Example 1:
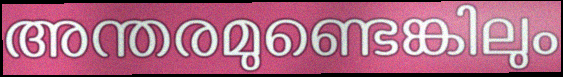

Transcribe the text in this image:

അന്തരമുണ്ടെങ്കിലും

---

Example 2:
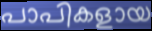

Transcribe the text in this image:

പാപികളായ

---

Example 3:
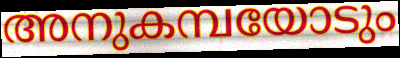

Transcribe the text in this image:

അനുകമ്പയോടും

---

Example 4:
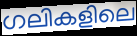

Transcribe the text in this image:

ഗലികളിലെ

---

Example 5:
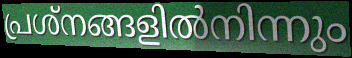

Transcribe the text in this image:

പ്രശ്നങ്ങളിൽനിന്നും